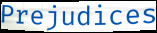
Prejudices